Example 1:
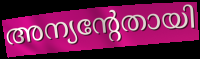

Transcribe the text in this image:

അന്യന്റേതായി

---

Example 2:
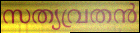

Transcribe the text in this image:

സത്യവ്രതൻ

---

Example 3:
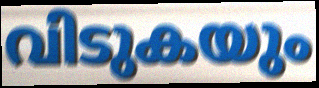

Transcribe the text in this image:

വിടുകയും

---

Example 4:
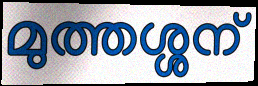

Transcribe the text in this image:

മുത്തശ്ശന്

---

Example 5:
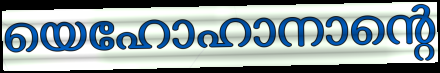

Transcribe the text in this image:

യെഹോഹാനാന്റെ